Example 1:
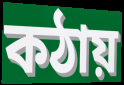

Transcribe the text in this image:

কঠায়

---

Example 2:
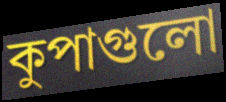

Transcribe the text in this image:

কুপাগুলো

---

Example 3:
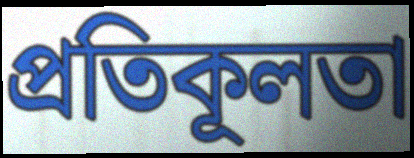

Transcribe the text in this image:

প্রতিকূলতা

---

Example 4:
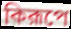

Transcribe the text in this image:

কিরূপে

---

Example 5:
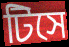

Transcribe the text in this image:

টিসে